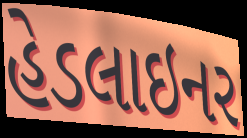
હેડલાઇનર